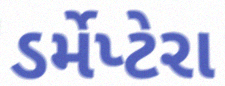
ડર્મેપ્ટેરા